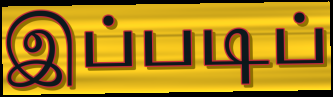
இப்படிப்